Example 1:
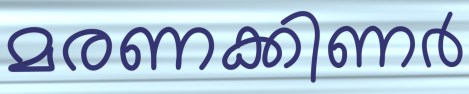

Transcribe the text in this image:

മരണക്കിണർ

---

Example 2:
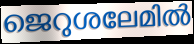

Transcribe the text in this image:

ജെറുശലേമിൽ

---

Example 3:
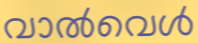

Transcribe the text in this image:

വാൽവെൾ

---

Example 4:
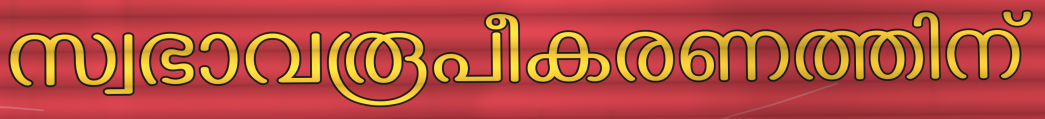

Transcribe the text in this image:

സ്വഭാവരൂപീകരണത്തിന്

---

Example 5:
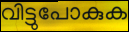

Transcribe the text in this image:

വിട്ടുപോകുക